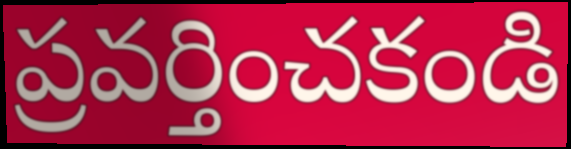
ప్రవర్తించకండి